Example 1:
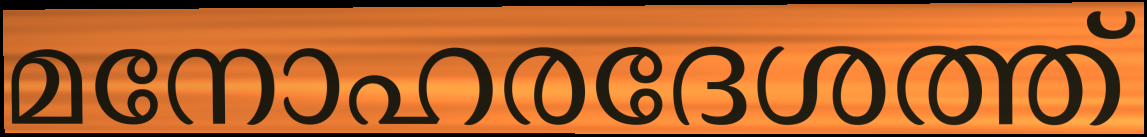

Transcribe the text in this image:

മനോഹരദേശത്ത്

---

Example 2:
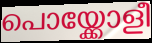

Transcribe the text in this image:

പൊയ്ക്കോളീ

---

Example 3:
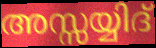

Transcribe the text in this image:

അസ്സയ്യിദ്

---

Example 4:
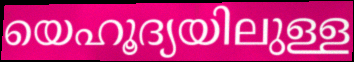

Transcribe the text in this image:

യെഹൂദ്യയിലുള്ള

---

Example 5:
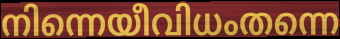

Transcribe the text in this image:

നിന്നെയീവിധംതന്നെ